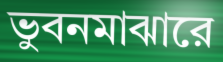
ভুবনমাঝারে